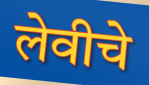
लेवीचे